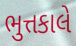
ભુત્તકાલે